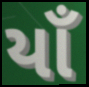
યાઁ